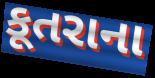
કૂતરાના